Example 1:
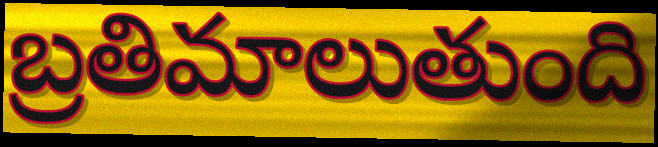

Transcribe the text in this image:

బ్రతిమాలుతుంది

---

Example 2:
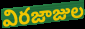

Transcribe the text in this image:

విరజాజుల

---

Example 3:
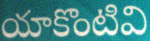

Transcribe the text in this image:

యాకొంటివి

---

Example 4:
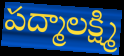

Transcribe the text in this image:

పద్మాలక్ష్మి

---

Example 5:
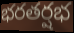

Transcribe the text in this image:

భరతర్షభ